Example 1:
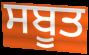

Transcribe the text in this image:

ਸਬੂਤ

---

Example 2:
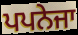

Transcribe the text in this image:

ਪਪਨੇਜਾ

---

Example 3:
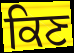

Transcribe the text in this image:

ਕਿਣ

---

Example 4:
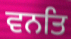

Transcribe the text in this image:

ਵਨਤਿ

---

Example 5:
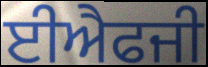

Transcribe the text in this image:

ਈਐਫਜੀ